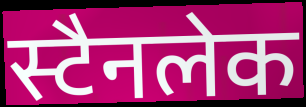
स्टैनलेक